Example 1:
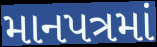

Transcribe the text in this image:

માનપત્રમાં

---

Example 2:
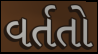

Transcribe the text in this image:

વર્તતો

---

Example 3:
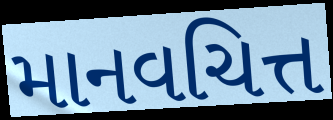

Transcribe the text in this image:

માનવચિત્ત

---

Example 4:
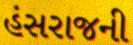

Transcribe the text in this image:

હંસરાજની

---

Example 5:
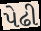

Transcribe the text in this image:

પેઢી